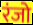
रंजो